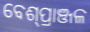
ବେଶ୍‌ପ୍ରାଞ୍ଜଳ